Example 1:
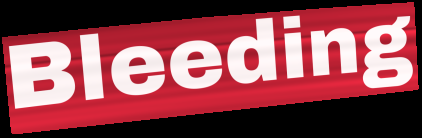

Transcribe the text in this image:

Bleeding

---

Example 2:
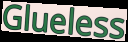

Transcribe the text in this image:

Glueless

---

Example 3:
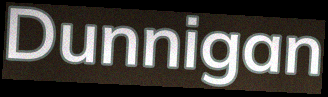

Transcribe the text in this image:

Dunnigan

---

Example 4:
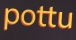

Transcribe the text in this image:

pottu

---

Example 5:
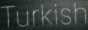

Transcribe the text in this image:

Turkish